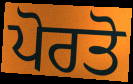
ਪੋਰਤੋ